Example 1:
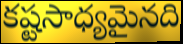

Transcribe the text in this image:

కష్టసాధ్యమైనది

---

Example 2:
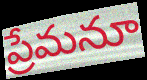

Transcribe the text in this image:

ప్రేమనూ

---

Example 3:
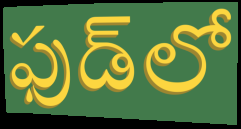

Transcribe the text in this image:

ఫుడ్‌లో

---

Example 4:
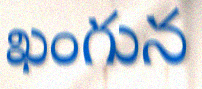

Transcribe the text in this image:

ఖంగున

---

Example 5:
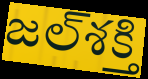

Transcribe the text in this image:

జల్‌శక్తి